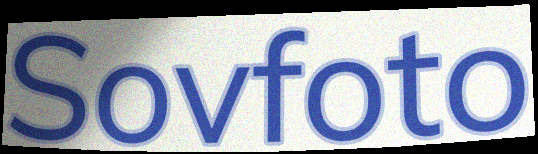
Sovfoto